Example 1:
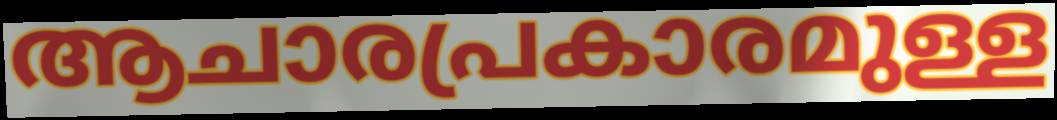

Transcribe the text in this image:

ആചാരപ്രകാരമുള്ള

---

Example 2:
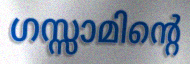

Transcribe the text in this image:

ഗസ്സാമിന്റെ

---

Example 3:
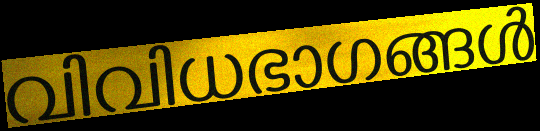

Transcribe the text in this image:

വിവിധഭാഗങ്ങൾ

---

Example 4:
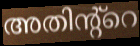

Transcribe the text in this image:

അതിന്റ്റെ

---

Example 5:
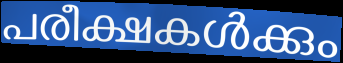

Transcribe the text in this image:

പരീക്ഷകൾക്കും